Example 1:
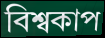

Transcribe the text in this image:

বিশ্বকাপ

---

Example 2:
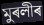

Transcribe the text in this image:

মুৰলীৰ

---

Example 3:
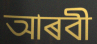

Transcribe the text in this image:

আৰবী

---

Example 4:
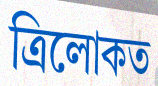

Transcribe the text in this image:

ত্ৰিলোকত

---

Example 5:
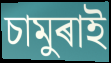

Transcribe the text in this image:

চামুৰাই